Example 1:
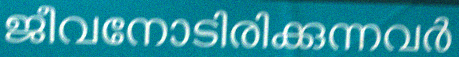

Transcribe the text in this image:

ജീവനോടിരിക്കുന്നവർ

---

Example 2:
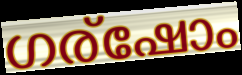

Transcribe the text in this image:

ഗര്ഷോം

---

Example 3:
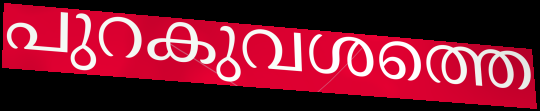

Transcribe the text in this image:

പുറകുവശത്തെ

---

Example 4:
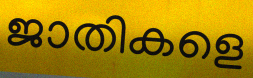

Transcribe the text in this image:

ജാതികളെ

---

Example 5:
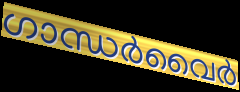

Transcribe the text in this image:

ഗാന്ധർവൈർ